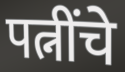
पत्नींचे